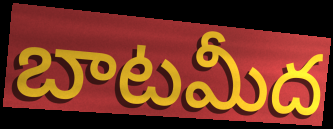
బాటమీద